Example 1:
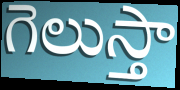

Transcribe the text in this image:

గెలుస్తా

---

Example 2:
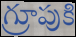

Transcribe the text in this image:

గ్రూపుకి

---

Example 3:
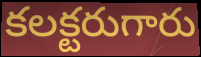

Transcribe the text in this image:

కలక్టరుగారు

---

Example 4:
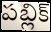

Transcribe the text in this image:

పబ్లిక్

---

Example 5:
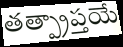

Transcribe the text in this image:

తత్ప్రాప్తయే